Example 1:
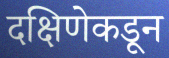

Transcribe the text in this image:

दक्षिणेकडून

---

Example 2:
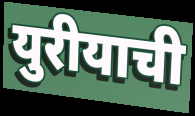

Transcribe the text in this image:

युरीयाची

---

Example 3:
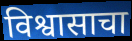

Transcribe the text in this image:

विश्वासाचा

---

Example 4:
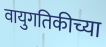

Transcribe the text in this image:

वायुगतिकीच्या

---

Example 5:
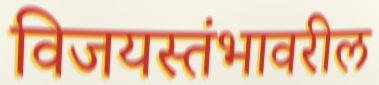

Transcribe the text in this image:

विजयस्तंभावरील